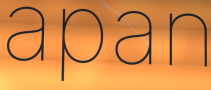
apan